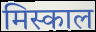
मिस्काल